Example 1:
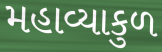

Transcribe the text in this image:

મહાવ્યાકુળ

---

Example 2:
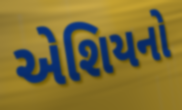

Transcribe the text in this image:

એશિયનો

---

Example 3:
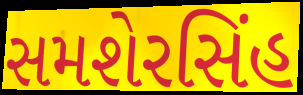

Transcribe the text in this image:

સમશેરસિંહ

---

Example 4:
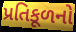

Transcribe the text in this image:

પ્રતિકૂળનો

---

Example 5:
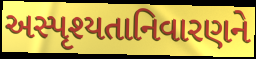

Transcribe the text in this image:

અસ્પૃશ્યતાનિવારણને